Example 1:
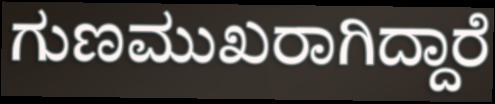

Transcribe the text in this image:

ಗುಣಮುಖರಾಗಿದ್ದಾರೆ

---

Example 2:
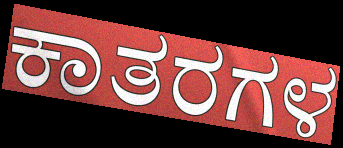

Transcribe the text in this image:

ಕಾತರಗಳ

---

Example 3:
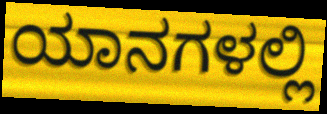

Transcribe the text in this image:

ಯಾನಗಳಲ್ಲಿ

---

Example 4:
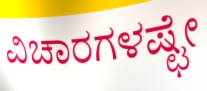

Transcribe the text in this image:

ವಿಚಾರಗಳಷ್ಟೇ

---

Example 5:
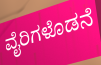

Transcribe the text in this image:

ವೈರಿಗಳೊಡನೆ